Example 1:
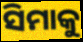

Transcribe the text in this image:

ସିମାକୁ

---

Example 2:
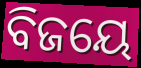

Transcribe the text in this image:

ବିଜୟେ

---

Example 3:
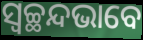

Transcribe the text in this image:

ସ୍ୱଚ୍ଛନ୍ଦଭାବେ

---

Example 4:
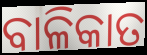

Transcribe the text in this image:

ବାଳିକାତ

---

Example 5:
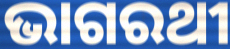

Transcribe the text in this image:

ଭାଗରଥୀ